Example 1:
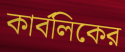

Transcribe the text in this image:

কার্বলিকের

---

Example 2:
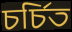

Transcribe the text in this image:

চর্চিত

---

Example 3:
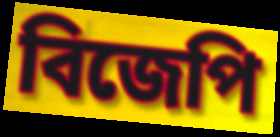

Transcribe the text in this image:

বিজেপি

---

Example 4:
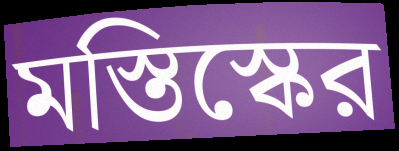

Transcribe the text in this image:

মস্তিস্কের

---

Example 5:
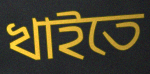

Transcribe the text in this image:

খাইতে